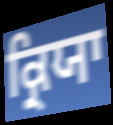
ਕ੍ਰਿਯਾ